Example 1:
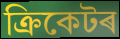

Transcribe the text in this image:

ক্ৰিকেটৰ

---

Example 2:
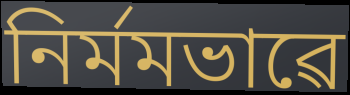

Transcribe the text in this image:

নিৰ্মমভাৱে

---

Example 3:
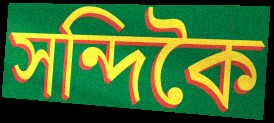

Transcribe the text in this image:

সন্দিকৈ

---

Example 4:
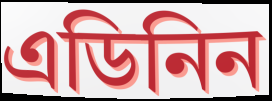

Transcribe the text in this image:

এডিনিন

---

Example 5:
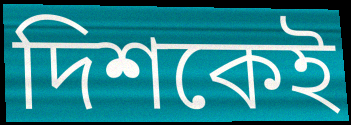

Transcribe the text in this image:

দিশকেই